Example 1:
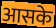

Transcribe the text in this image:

आसके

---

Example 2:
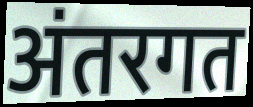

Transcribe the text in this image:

अंतरगत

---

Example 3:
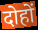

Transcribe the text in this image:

दोहों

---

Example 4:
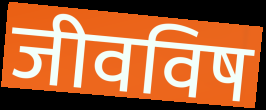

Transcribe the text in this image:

जीवविष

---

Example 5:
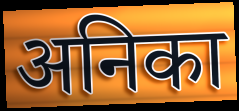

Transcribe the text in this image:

अनिका